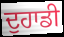
ਦੁਹਾਡੀ